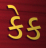
કેક